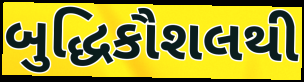
બુદ્ધિકૌશલથી